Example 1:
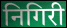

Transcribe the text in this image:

निगिरी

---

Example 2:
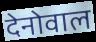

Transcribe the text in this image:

देनोवाल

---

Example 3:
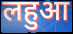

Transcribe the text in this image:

लहुआ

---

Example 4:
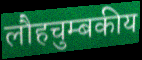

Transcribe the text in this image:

लौहचुम्बकीय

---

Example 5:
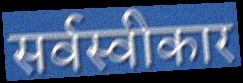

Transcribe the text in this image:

सर्वस्वीकार